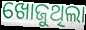
ଖୋଜୁଥିଲା